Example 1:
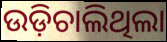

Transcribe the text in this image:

ଉଡ଼ିଚାଲିଥିଲା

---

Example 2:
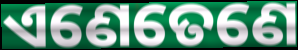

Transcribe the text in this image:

ଏଣେତେଣେ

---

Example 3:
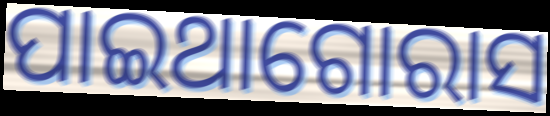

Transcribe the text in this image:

ପାଇଥାଗୋରାସ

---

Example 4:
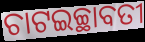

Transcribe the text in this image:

ଚାଟଇଚ୍ଛାବତୀ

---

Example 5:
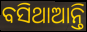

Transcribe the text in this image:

ବସିଥାଆନ୍ତି